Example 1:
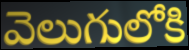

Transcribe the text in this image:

వెలుగులోకి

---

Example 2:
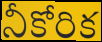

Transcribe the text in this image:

నీకోరిక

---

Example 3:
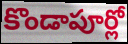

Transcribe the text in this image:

కొండాపూర్లో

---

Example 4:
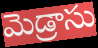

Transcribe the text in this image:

మెడ్రాసు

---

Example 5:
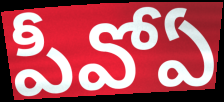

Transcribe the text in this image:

పీవోఏ